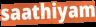
saathiyam